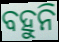
ବହୁନି